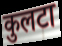
कुलटा